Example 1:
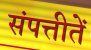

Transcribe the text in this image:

संपत्तीतें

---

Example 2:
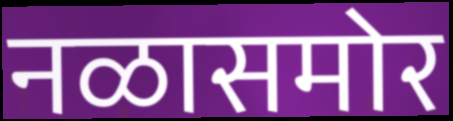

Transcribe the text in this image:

नळासमोर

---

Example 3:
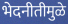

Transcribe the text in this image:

भेदनीतीमुळे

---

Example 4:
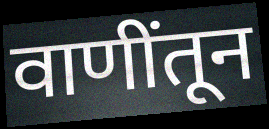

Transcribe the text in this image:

वाणींतून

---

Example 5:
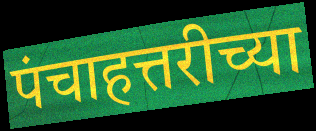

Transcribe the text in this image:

पंचाहत्तरीच्या